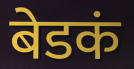
बेडकं